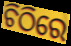
ଚିଠିରେ